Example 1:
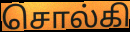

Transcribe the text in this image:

சொல்கி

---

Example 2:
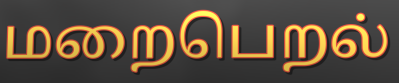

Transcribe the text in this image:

மறைபெறல்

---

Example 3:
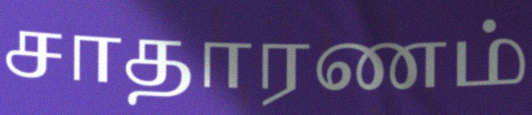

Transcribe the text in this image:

சாதாரணம்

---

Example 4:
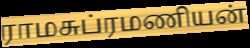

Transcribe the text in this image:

ராமசுப்ரமணியன்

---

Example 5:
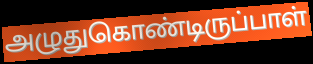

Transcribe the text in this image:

அழுதுகொண்டிருப்பாள்